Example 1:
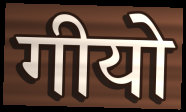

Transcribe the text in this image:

गीयो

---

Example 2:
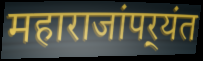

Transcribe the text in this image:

महाराजांपर्यंत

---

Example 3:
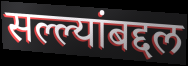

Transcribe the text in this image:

सल्ल्यांबद्दल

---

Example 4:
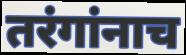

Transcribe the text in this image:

तरंगांनाच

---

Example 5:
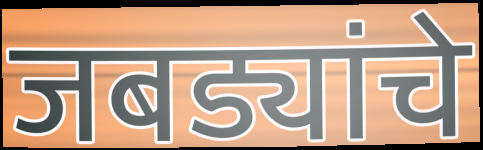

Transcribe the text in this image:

जबड्यांचे